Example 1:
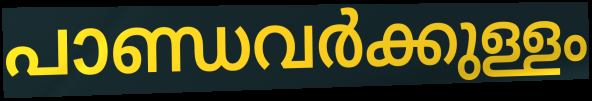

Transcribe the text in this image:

പാണ്ഡവർക്കുള്ളം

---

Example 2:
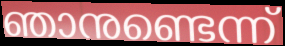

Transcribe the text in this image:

ഞാനുണ്ടെന്ന്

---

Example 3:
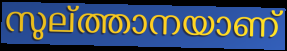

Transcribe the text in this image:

സുല്ത്താനയാണ്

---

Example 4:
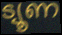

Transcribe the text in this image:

ട്യൂണ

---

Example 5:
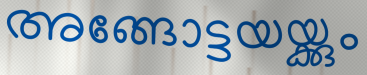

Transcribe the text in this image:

അങ്ങോട്ടയയ്ക്കും